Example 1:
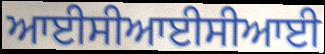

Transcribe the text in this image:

ਆਈਸੀਆਈਸੀਆਈ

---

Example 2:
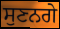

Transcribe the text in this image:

ਸੁਣਨਗੇ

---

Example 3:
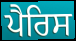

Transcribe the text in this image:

ਪੈਰਿਸ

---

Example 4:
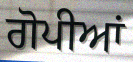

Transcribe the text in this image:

ਗੋਪੀਆਂ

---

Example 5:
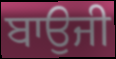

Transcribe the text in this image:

ਬਾਉਜੀ